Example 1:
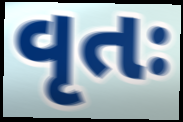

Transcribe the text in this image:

વૃતઃ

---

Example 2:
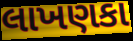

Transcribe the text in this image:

લાખણકા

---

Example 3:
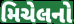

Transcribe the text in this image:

મિચેલનો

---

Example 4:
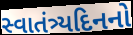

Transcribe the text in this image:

સ્વાતંત્ર્યદિનનો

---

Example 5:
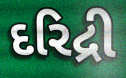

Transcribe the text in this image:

દરિદ્રી